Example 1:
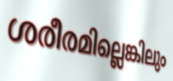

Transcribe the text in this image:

ശരീരമില്ലെങ്കിലും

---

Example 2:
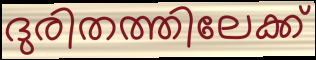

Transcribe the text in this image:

ദുരിതത്തിലേക്ക്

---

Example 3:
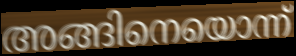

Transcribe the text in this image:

അങ്ങിനെയൊന്ന്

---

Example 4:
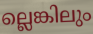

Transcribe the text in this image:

ല്ലെങ്കിലും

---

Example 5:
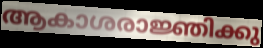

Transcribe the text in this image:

ആകാശരാജ്ഞിക്കു